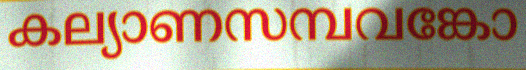
കല്യാണസമ്പവങ്കോ